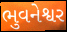
ભુવનેશ્વર